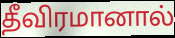
தீவிரமானால்